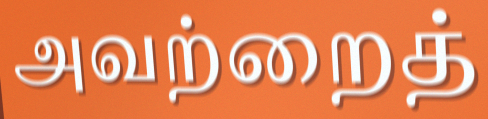
அவற்றைத்